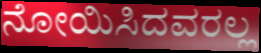
ನೋಯಿಸಿದವರಲ್ಲ